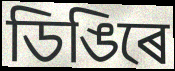
ডিঙিৰে